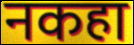
नकहा